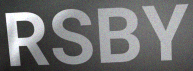
RSBY